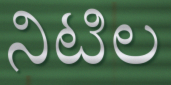
ನಿಟಿಲ